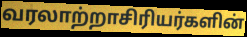
வரலாற்றாசிரியர்களின்